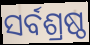
ସର୍ବଶ୍ରଷ୍ଠ